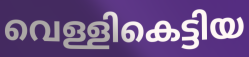
വെള്ളികെട്ടിയ